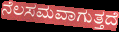
ನೆಲಸಮವಾಗುತ್ತದೆ